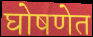
घोषणेत